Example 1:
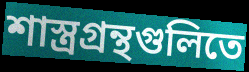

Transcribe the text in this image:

শাস্ত্রগ্রন্থগুলিতে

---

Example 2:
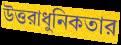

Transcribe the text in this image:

উত্তরাধুনিকতার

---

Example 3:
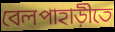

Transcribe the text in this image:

বেলপাহাড়ীতে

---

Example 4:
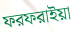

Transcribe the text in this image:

ফরফরাইয়া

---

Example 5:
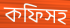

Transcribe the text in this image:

কফিসহ